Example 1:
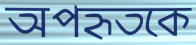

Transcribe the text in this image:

অপহৃতকে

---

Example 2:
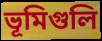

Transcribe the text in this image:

ভূমিগুলি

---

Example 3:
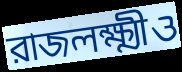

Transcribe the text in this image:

রাজলক্ষ্মীও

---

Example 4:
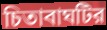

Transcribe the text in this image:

চিতাবাঘটির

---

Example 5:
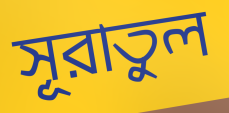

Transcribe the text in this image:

সূরাতুল